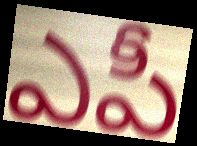
ఎపీ